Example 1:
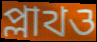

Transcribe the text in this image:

প্লাথও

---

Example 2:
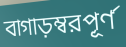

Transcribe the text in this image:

বাগাড়ম্বরপূর্ণ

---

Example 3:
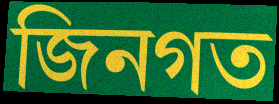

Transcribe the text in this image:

জিনগত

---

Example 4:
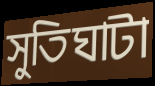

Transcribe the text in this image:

সুতিঘাটা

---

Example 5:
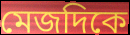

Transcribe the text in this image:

মেজদিকে